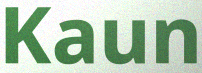
Kaun